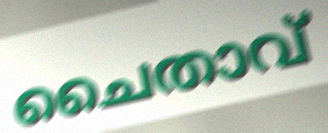
ചൈതാവ്